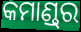
କମାଣ୍ଡ୍‌ର